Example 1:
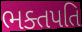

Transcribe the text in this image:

ભક્તપતિ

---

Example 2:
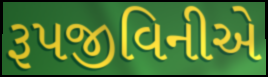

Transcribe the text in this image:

રૂપજીવિનીએ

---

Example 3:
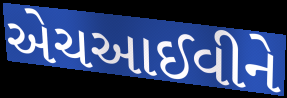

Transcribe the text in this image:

એચઆઈવીને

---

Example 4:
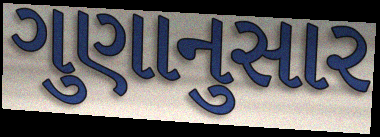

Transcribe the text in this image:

ગુણાનુસાર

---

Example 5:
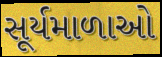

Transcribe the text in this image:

સૂર્યમાળાઓ